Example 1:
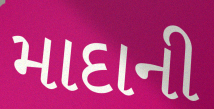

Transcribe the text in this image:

માદાની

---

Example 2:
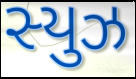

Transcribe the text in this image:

સ્યુઝ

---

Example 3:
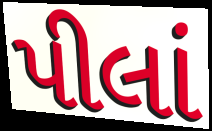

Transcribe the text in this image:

પીલાં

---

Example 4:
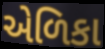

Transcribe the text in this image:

એળિકા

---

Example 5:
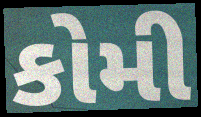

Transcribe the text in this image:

કોમી